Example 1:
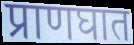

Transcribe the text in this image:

प्राणघात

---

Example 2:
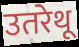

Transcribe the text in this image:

उतरेथू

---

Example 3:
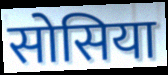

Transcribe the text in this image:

सोसिया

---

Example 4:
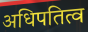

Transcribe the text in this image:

अधिपतित्व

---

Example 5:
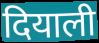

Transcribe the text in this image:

दियाली